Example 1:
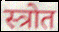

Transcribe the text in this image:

स्त्रोत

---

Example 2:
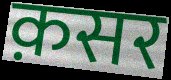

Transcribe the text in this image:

क़सर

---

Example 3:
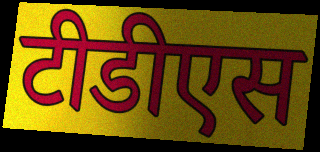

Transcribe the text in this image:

टीडीएस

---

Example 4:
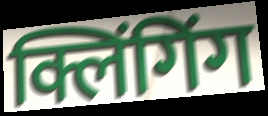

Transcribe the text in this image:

क्लिंगिंग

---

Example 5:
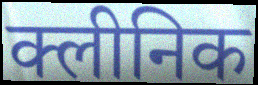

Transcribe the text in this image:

क्लीनिक